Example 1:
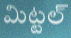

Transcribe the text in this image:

మిట్టల్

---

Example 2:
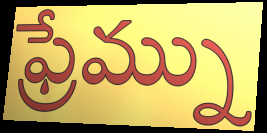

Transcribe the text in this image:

ఫ్రేమ్ను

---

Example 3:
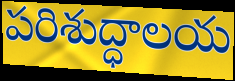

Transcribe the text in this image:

పరిశుద్ధాలయ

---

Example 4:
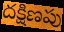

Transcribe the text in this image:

దక్షిణపు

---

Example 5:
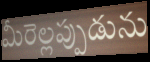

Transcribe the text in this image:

మీరెల్లప్పుడును